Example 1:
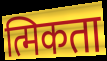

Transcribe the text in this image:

त्मिकता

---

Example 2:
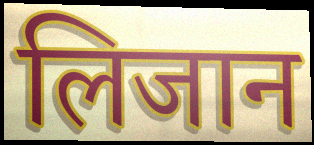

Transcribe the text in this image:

लिजान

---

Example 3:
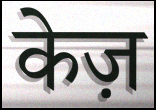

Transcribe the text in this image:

केज़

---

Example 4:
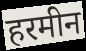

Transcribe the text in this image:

हरमीन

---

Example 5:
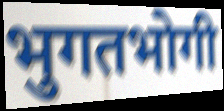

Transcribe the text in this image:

भुगतभोगी